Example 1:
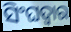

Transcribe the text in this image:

ସିଂଘଦ୍ୱାର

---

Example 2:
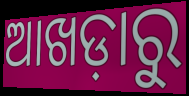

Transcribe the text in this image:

ଆଖଡ଼ାରୁ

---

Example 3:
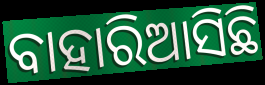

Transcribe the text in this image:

ବାହାରିଆସିଛି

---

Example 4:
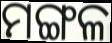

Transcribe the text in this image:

ମଙ୍ଗଳ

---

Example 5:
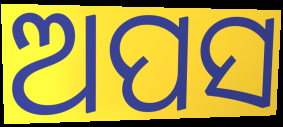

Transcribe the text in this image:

ଅପସ